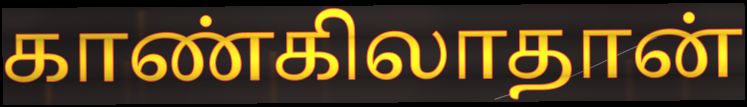
காண்கிலாதான்